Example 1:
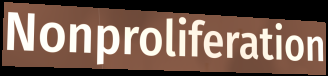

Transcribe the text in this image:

Nonproliferation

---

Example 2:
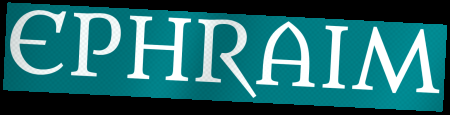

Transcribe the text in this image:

EPHRAIM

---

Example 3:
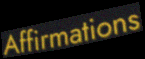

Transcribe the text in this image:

Affirmations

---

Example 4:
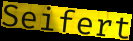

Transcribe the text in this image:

Seifert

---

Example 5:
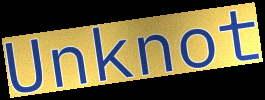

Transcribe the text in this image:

Unknot